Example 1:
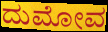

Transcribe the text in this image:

ದುಮೋವ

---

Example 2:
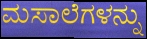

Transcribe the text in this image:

ಮಸಾಲೆಗಳನ್ನು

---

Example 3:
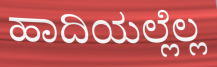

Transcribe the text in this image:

ಹಾದಿಯಲ್ಲೆಲ್ಲ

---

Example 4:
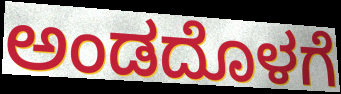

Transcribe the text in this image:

ಅಂಡದೊಳಗೆ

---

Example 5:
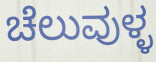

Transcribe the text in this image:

ಚೆಲುವುಳ್ಳ